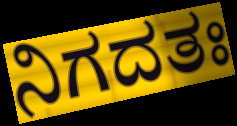
ನಿಗದತಃ